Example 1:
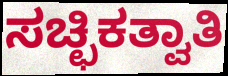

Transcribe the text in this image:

ಸಚ್ಛಿಕತ್ವಾತಿ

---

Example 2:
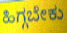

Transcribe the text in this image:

ಹಿಗ್ಗಬೇಕು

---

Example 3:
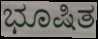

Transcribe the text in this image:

ಭೂಷಿತ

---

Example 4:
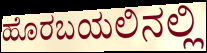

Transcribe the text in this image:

ಹೊರಬಯಲಿನಲ್ಲಿ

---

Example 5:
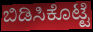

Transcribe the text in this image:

ಬಿಡಿಸಿಕೊಟ್ಟೆ